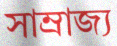
সাম্ৰাজ্য